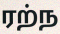
ரற்ந